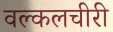
वल्कलचीरी